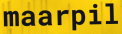
maarpil